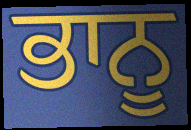
ਭਾਨੂ